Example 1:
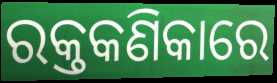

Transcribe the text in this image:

ରକ୍ତକଣିକାରେ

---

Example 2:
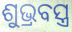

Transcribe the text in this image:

ଶୁଭ୍ରବସ୍ତ୍ର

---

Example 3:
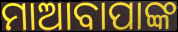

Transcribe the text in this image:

ମାଆବାପାଙ୍କ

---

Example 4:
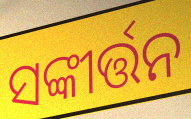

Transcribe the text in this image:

ସଙ୍କୀର୍ତ୍ତନ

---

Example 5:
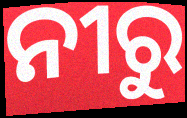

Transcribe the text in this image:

ନୀରୁ